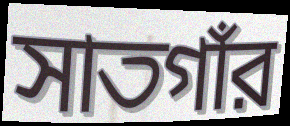
সাতগাঁর